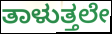
ತಾಳುತ್ತಲೇ